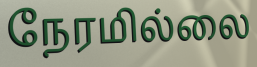
நேரமில்லை